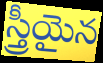
స్త్రీయైన